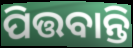
ପିତ୍ତବାନ୍ତି